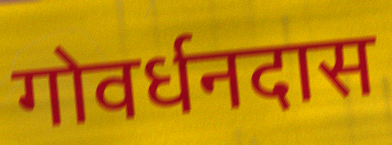
गोवर्धनदास